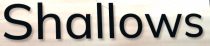
Shallows